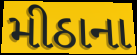
મીઠાના